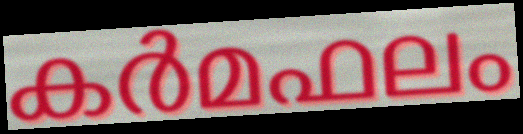
കർമഫലം